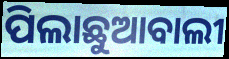
ପିଲାଛୁଆବାଲୀ